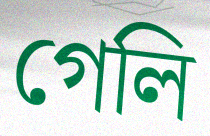
গেলি